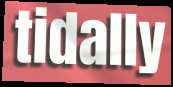
tidally